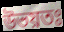
উভয়তঃ